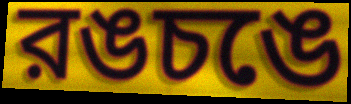
রঙচঙে